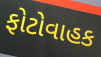
ફોટોવાહક